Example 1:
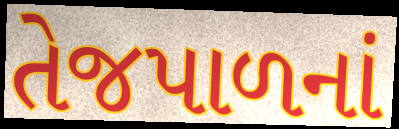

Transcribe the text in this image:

તેજપાળનાં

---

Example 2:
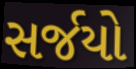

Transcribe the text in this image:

સર્જયો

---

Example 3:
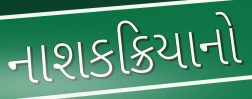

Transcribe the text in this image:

નાશકક્રિયાનો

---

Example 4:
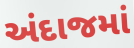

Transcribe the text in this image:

અંદાજમાં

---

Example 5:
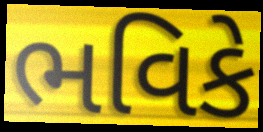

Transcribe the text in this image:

ભવિકે